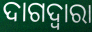
ଦାଗଦ୍ୱାରା